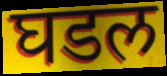
घडल